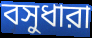
বসুধারা